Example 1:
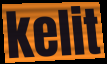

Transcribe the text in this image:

kelit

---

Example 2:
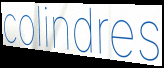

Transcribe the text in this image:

colindres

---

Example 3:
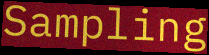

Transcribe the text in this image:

Sampling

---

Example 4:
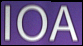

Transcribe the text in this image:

IOA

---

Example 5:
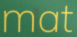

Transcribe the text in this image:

mat